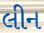
લીન